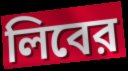
লিবের